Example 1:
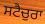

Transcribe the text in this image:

ਸਟੈਚੁਰਾ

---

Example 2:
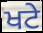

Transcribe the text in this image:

ਖਟੇ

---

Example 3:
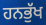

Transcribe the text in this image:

ਹਨਭੁੱਖ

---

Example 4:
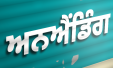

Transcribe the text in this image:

ਅਨਐਂਡਿੰਗ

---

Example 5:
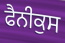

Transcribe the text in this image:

ਫੈਨੀਕੁਸ